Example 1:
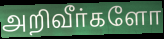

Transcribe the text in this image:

அறிவீர்களோ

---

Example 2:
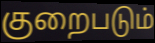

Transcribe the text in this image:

குறைபடும்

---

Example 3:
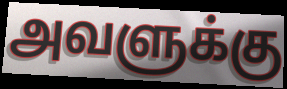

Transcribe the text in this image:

அவளுக்கு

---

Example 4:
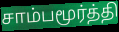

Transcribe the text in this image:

சாம்பமூர்த்தி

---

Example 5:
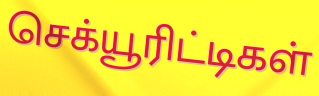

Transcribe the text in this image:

செக்யூரிட்டிகள்